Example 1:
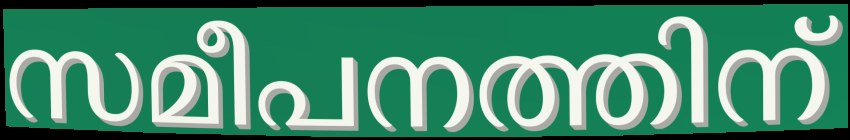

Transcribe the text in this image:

സമീപനത്തിന്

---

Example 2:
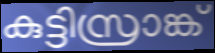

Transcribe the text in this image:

കുട്ടിസ്രാങ്ക്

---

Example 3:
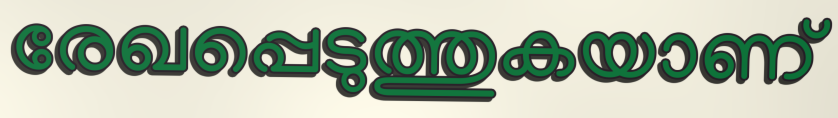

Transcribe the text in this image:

രേഖപ്പെടുത്തുകയാണ്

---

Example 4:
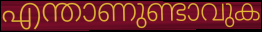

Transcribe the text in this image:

എന്താണുണ്ടാവുക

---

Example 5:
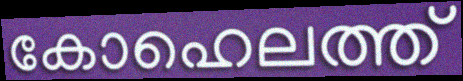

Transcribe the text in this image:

കോഹെലത്ത്